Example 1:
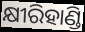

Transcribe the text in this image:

କ୍ଷୀରିହାଣ୍ଡି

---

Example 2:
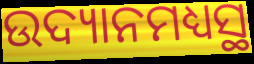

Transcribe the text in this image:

ଉଦ୍ୟାନମଧ୍ୟସ୍ଥ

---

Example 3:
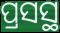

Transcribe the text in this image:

ପ୍ରସସ୍ଥ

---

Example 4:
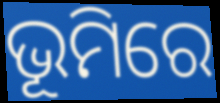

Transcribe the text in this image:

ଭୂମିରେ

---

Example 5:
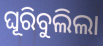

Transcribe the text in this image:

ଘୂରିବୁଲିଲା